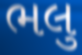
ભલુ